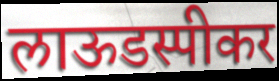
लाऊडस्पीकर